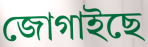
জোগাইছে